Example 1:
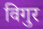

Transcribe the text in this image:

विगुर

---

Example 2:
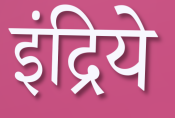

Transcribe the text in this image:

इंद्रिये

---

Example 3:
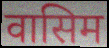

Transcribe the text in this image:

वासिम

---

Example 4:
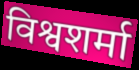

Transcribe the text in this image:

विश्वशर्मा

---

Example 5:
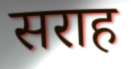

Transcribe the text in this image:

सराह